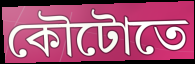
কৌটোতে